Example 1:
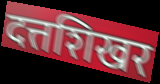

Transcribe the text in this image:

दत्तशिखर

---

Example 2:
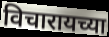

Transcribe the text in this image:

विचारायच्या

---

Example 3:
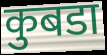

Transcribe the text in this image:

कुबडा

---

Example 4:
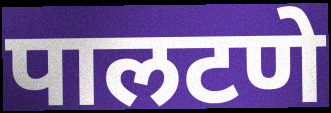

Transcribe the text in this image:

पालटणे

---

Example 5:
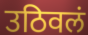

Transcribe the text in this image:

उठिवलं